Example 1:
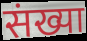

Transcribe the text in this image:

संख्‍या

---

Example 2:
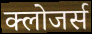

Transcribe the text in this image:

क्लोजर्स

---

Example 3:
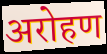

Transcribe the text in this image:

अरोहण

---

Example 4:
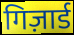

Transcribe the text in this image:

गिज़ार्ड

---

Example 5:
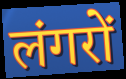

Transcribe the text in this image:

लंगरों